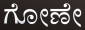
ಗೋಣೇ